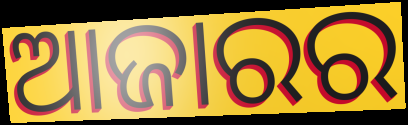
ଆଜାରର